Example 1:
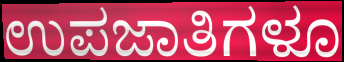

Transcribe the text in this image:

ಉಪಜಾತಿಗಳೂ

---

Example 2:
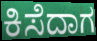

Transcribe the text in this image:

ಕಿಸೆದಾಗ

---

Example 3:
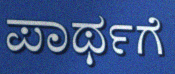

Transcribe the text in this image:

ಪಾರ್ಥಗೆ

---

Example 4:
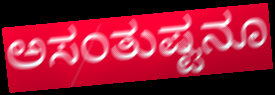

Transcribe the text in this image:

ಅಸಂತುಷ್ಟನೂ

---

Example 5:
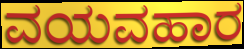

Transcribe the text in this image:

ವಯವಹಾರ